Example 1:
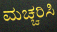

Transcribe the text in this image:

ಮಚ್ಚರಿಸಿ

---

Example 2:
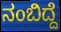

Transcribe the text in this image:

ನಂಬಿದ್ದೆ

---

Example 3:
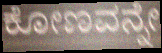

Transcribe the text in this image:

ಕೋಣವನ್ನೇ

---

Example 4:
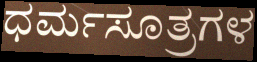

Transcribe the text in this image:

ಧರ್ಮಸೂತ್ರಗಳ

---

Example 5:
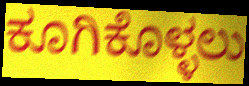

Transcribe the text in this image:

ಕೂಗಿಕೊಳ್ಳಲು